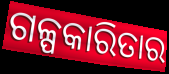
ଗଳ୍ପକାରିତାର